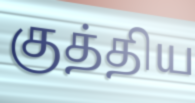
குத்திய